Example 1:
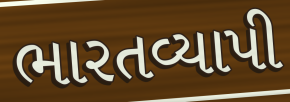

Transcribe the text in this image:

ભારતવ્યાપી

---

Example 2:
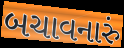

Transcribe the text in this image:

બચાવનારું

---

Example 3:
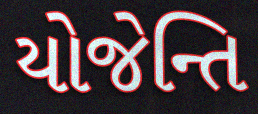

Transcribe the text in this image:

યોજેન્તિ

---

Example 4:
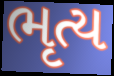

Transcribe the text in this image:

ભૃત્ય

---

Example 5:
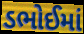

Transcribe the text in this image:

ડભોઈમાં